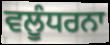
ਵਲੂੰਧਰਨਾ